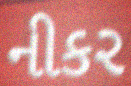
નીકર